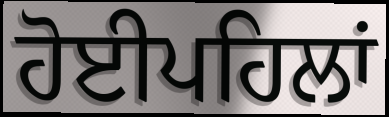
ਹੋਈਪਹਿਲਾਂ